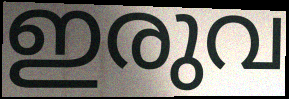
ഇരുവ